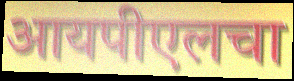
आयपीएलचा